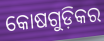
କୋଷଗୁଡ଼ିକର